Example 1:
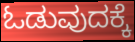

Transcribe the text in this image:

ಓಡುವುದಕ್ಕೆ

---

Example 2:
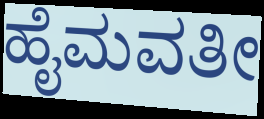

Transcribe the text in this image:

ಹೈಮವತೀ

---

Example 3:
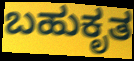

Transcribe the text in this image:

ಬಹುಕೃತ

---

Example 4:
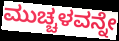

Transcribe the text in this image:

ಮುಚ್ಚಳವನ್ನೇ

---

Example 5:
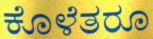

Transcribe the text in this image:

ಕೊಳೆತರೂ